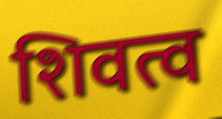
शिवत्व